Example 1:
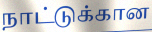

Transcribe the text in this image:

நாட்டுக்கான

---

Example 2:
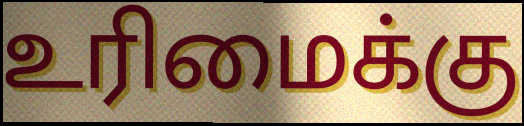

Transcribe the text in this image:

உரிமைக்கு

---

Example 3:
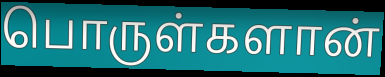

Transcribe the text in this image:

பொருள்களான்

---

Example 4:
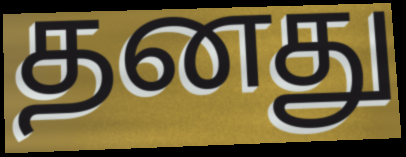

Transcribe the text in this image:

தனது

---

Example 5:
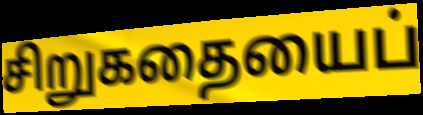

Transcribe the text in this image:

சிறுகதையைப்